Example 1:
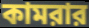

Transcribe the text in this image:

কামরার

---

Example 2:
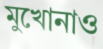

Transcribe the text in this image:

মুখোনাও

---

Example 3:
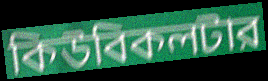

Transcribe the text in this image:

কিউবিকলটার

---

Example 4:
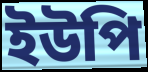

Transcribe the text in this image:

ইউপি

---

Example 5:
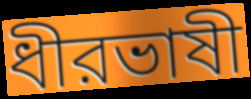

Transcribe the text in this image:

ধীরভাষী